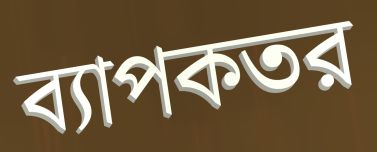
ব্যাপকতর